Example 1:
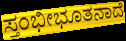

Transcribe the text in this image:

ಸ್ತಂಭೀಭೂತನಾದೆ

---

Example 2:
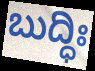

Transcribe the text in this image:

ಬುದ್ಧಿಃ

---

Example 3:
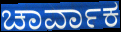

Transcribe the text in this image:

ಚಾರ್ವಾಕ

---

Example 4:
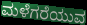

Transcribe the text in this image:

ಮಳೆಗರೆಯುವ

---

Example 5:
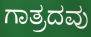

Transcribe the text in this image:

ಗಾತ್ರದವು